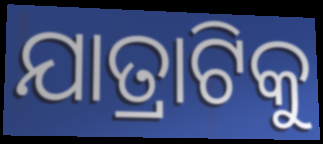
ଯାତ୍ରାଟିକୁ